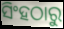
ସିଂହଠାରୁ